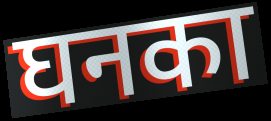
घनका